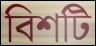
বিশটি